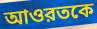
আওরতকে